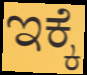
ಇಕ್ಕೆ